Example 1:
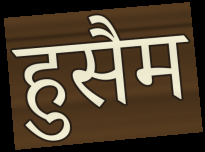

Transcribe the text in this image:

हुसैम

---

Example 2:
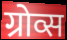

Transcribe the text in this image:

ग्रोव्स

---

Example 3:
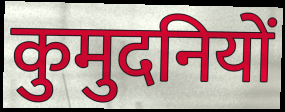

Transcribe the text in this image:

कुमुदनियों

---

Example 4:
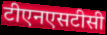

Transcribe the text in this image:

टीएनएसटीसी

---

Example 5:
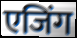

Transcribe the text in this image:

एजिंग